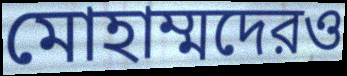
মোহাম্মদেরও